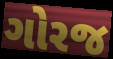
ગોરજ